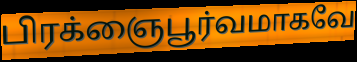
பிரக்ஞைபூர்வமாகவே